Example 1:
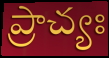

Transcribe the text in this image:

ప్రాచ్యః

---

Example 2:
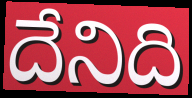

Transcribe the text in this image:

దేనిది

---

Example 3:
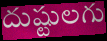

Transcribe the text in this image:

దుష్టులగు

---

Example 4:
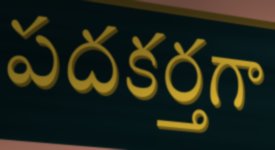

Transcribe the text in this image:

పదకర్తగా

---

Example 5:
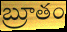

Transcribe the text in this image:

బ్రూతం